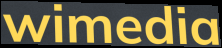
wimedia